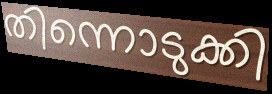
തിന്നൊടുക്കി